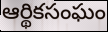
ఆర్థికసంఘం